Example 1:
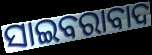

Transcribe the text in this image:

ସାଇବରାବାଦ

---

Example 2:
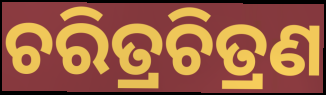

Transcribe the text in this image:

ଚରିତ୍ରଚିତ୍ରଣ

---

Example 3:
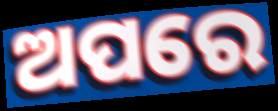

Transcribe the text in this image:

ଅପରେ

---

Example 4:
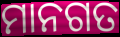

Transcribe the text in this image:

ମାନଗତ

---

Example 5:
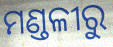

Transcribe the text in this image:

ମଣ୍ଡଳୀରୁ